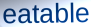
eatable